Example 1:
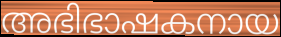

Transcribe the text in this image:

അഭിഭാഷകനായ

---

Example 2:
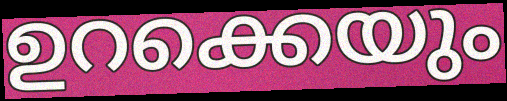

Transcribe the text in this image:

ഉറക്കെയും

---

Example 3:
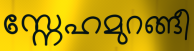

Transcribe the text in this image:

സ്നേഹമുറങ്ങീ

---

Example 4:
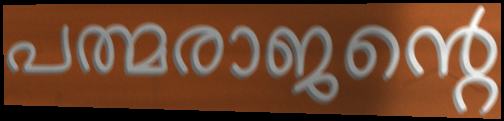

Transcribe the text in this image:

പത്മരാജന്റെ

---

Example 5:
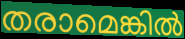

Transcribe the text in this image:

തരാമെങ്കിൽ